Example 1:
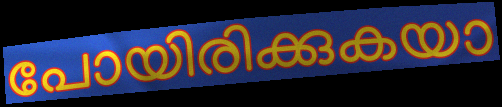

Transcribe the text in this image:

പോയിരിക്കുകയാ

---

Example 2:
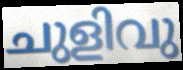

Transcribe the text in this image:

ചുളിവു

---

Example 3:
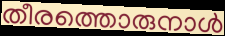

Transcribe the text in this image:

തീരത്തൊരുനാൾ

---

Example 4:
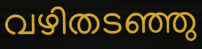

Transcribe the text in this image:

വഴിതടഞ്ഞു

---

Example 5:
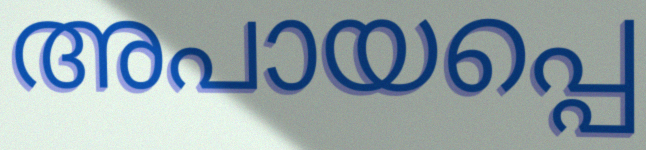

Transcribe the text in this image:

അപായപ്പെ